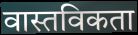
वास्तविकता